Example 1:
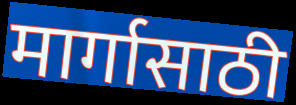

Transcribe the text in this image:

मार्गासाठी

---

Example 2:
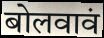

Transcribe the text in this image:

बोलवावं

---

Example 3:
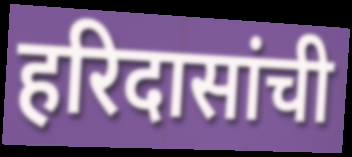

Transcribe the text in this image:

हरिदासांची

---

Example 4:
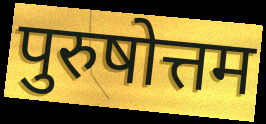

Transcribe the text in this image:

पुरुषोत्तम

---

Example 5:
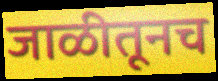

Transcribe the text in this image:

जाळीतूनच